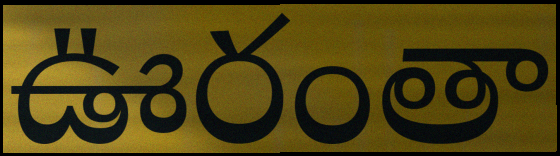
ఊరంతా